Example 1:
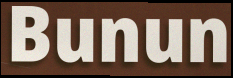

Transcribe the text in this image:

Bunun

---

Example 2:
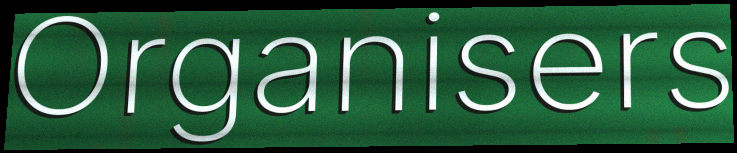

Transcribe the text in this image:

Organisers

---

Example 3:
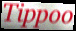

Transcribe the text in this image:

Tippoo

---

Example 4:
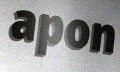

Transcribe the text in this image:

apon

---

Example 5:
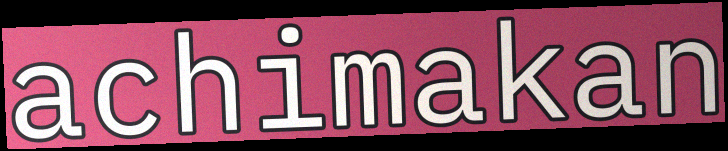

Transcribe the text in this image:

achimakan